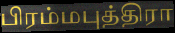
பிரம்மபுத்திரா